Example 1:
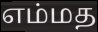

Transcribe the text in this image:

எம்மத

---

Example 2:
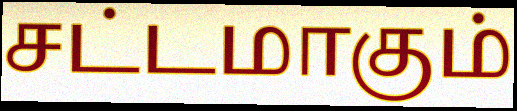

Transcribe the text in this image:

சட்டமாகும்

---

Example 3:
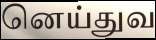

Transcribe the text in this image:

னெய்துவ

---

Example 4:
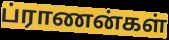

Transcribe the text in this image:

ப்ராணன்கள்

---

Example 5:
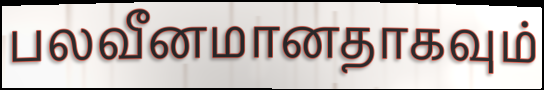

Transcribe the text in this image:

பலவீனமானதாகவும்